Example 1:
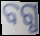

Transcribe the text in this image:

ବଗ୍ଧ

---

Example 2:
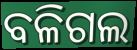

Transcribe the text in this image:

ବଳିଗଲ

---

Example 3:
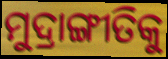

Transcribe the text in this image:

ମୁଦ୍ରାଙ୍ଗୀତିକୁ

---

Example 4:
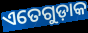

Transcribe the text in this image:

ଏତେଗୁଡ଼ାକ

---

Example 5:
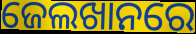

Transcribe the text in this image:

ଜେଲଖାନରେ